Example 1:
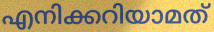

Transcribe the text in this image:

എനിക്കറിയാമത്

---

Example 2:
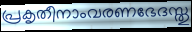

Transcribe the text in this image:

പ്രകൃതീനാംവരണഭേദസ്തു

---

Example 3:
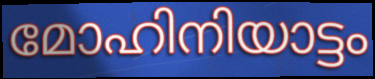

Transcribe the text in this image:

മോഹിനിയാട്ടം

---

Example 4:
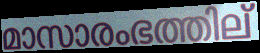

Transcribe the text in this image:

മാസാരംഭത്തില്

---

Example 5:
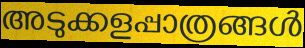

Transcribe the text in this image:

അടുക്കളപ്പാത്രങ്ങൾ